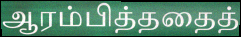
ஆரம்பித்ததைத்